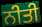
ਨੀਤੀ